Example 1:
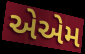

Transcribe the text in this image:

એએમ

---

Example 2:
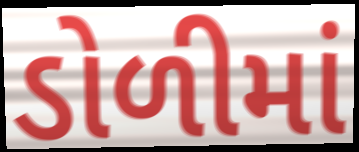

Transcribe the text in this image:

ડોળીમાં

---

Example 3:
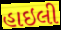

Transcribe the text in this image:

હાઇલી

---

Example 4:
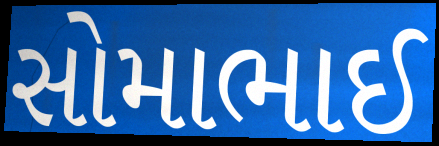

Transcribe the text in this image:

સોમાભાઈ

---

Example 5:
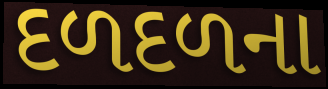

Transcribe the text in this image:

દળદળના